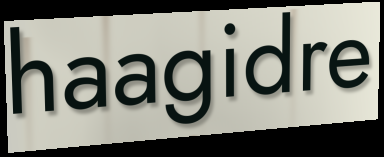
haagidre